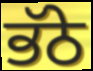
ਭੱਠੇ